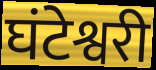
घंटेश्वरी